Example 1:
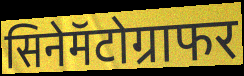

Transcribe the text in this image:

सिनेमॅटोग्राफर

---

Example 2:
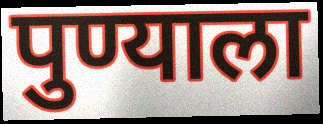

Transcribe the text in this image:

पुण्याला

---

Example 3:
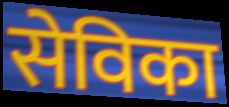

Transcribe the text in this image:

सेविका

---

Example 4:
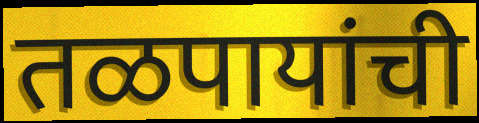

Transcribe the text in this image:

तळपायांची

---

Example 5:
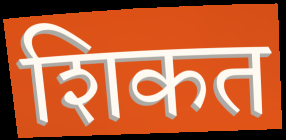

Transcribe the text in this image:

शिकत